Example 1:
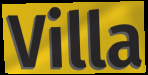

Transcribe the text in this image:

Villa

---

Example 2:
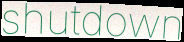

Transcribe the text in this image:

shutdown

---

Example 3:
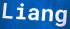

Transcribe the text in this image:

Liang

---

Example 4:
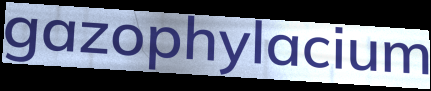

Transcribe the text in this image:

gazophylacium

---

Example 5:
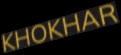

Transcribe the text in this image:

KHOKHAR